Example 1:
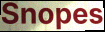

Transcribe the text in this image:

Snopes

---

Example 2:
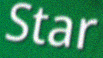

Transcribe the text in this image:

Star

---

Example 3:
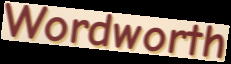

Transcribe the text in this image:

Wordworth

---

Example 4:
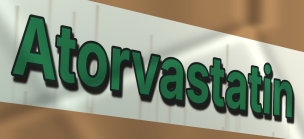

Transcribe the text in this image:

Atorvastatin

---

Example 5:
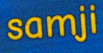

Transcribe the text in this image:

samji